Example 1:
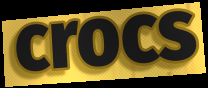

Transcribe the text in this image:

crocs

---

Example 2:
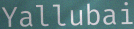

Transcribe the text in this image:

Yallubai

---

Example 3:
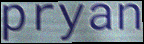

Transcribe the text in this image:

pryan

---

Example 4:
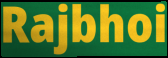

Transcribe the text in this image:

Rajbhoi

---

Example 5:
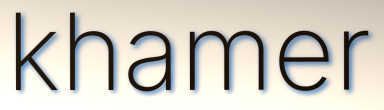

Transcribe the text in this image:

khamer